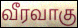
வீரவாகு